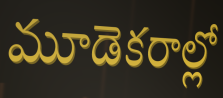
మూడెకరాల్లో